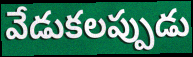
వేడుకలప్పుడు